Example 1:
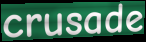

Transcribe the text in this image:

crusade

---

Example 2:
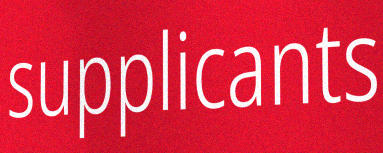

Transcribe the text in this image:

supplicants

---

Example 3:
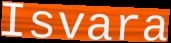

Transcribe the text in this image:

Isvara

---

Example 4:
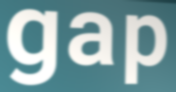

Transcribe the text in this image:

gap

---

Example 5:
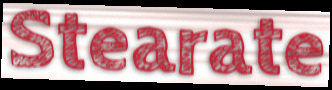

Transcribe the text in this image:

Stearate